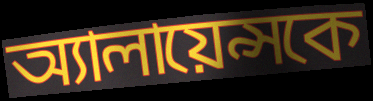
অ্যালায়েন্সকে